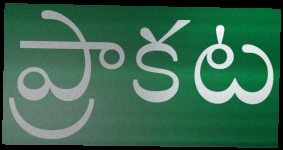
ప్రాకట